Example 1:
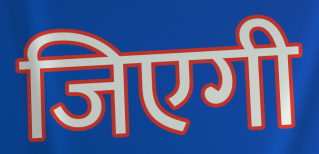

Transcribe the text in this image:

जिएगी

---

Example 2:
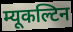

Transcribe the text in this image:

म्यूकल्टिन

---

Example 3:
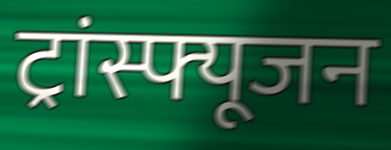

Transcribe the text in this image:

ट्रांस्फ्यूजन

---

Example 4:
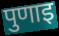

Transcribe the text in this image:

पुणाइ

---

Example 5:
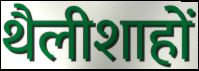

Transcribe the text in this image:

थैलीशाहों